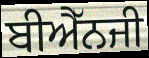
ਬੀਐੱਨਜੀ